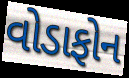
વોડાફોન